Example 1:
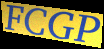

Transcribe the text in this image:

FCGP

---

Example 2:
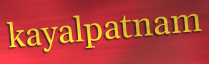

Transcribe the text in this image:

kayalpatnam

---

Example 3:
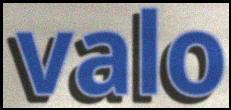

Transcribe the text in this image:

valo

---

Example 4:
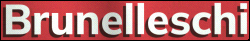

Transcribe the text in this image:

Brunelleschi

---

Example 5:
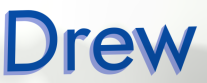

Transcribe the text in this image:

Drew